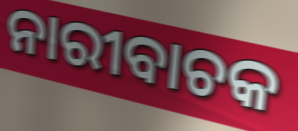
ନାରୀବାଚକ